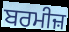
ਬਰਮੀਜ਼